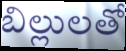
బిల్లులతో